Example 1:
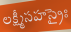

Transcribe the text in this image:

లక్ష్మీసహస్రైః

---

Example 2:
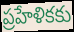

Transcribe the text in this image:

ప్రహేళికకు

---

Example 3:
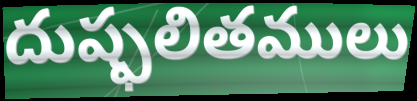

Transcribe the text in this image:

దుష్ఫలితములు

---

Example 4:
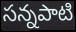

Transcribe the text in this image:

సన్నపాటి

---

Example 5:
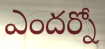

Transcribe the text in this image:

ఎందర్నో